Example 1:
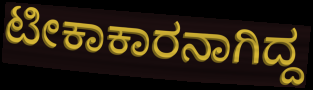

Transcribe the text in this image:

ಟೀಕಾಕಾರನಾಗಿದ್ದ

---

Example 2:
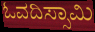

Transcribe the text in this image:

ಓವದಿಸ್ಸಾಮಿ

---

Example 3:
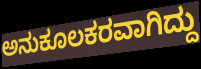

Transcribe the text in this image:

ಅನುಕೂಲಕರವಾಗಿದ್ದು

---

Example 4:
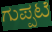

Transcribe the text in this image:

ಗುಪ್ಪಟೆ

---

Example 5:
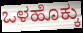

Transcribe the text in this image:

ಒಳಹೊಕ್ಕು